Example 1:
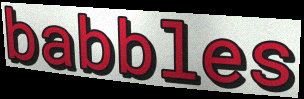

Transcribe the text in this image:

babbles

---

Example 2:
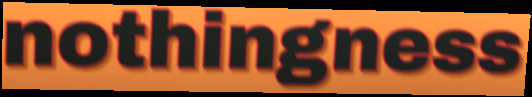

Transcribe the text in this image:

nothingness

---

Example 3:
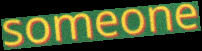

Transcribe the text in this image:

someone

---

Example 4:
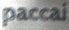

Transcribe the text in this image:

paccai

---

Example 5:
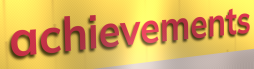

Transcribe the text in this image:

achievements